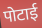
पोटाई